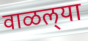
वाळल्या